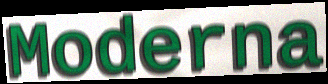
Moderna